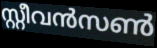
സ്റ്റീവൻസൺ